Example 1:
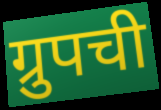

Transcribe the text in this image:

ग्रुपची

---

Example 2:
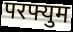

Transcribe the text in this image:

परफ्युम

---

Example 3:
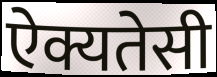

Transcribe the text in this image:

ऐक्यतेसी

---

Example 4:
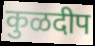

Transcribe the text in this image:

कुळदीप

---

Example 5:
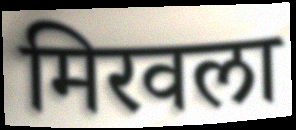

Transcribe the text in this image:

मिरवला